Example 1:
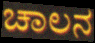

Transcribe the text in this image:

ಚಾಲನ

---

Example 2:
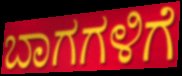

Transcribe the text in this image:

ಬಾಗಗಳಿಗೆ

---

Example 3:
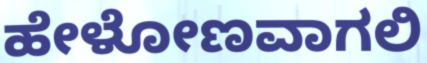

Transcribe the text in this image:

ಹೇಳೋಣವಾಗಲಿ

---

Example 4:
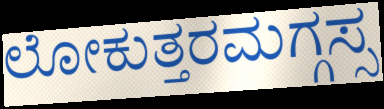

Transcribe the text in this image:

ಲೋಕುತ್ತರಮಗ್ಗಸ್ಸ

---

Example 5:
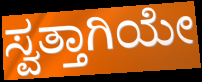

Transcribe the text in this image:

ಸ್ವತ್ತಾಗಿಯೇ